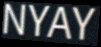
NYAY